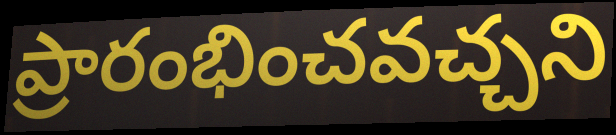
ప్రారంభించవచ్చని